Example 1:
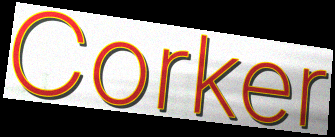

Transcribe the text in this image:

Corker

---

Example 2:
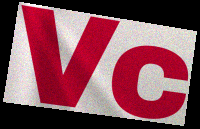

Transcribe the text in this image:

Vc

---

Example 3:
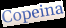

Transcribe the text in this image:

Copeina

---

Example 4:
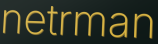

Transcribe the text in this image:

netrman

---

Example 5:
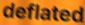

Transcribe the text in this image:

deflated